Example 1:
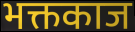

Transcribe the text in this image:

भक्तकाज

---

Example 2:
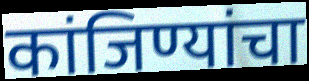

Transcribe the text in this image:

कांजिण्यांचा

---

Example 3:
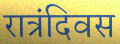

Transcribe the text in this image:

रात्रंदिवस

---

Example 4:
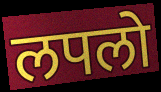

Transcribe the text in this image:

लपलो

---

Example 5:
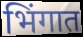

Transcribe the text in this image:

भिंगात